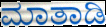
ಮಾತಾಡಿ